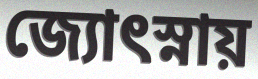
জ্যোৎস্নায়